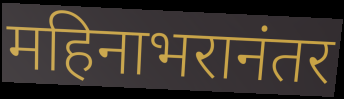
महिनाभरानंतर